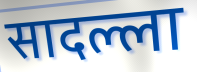
सादल्ला